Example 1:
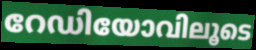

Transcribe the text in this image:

റേഡിയോവിലൂടെ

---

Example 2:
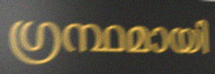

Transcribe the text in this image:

ഗ്രന്ഥമായി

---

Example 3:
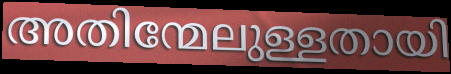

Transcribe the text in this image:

അതിന്മേലുള്ളതായി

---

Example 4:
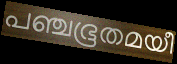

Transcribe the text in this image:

പഞ്ചഭൂതമയീ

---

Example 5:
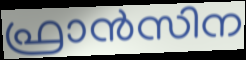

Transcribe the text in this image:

ഫ്രാൻസിന